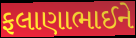
ફલાણાભાઈને